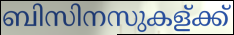
ബിസിനസുകള്ക്ക്